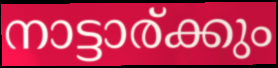
നാട്ടാര്ക്കും